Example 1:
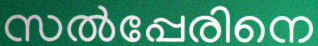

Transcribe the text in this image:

സൽപ്പേരിനെ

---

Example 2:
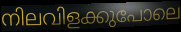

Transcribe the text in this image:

നിലവിളക്കുപോലെ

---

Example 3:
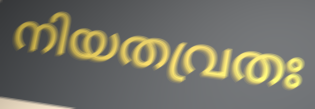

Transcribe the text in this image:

നിയതവ്രതഃ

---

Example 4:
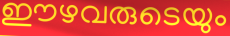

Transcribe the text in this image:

ഈഴവരുടെയും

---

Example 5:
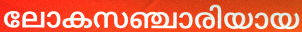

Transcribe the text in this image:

ലോകസഞ്ചാരിയായ